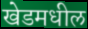
खेडमधील